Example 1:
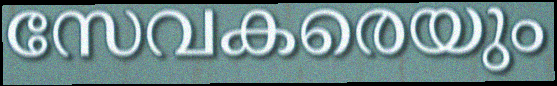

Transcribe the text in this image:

സേവകരെയും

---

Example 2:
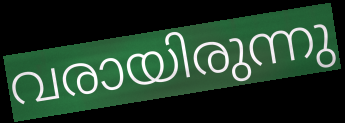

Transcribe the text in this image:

വരായിരുന്നു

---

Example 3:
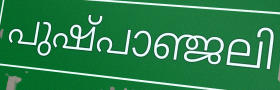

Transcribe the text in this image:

പുഷ്പാഞ്ജലി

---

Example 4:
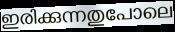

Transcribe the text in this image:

ഇരിക്കുന്നതുപോലെ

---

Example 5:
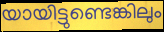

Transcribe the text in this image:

യായിട്ടുണ്ടെങ്കിലും